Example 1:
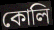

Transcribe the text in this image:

কোলি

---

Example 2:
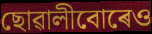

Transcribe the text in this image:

ছোৱালীবোৰেও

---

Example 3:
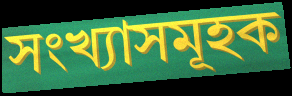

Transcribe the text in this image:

সংখ্যাসমূহক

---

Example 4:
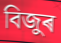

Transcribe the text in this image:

বিজুৰ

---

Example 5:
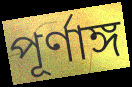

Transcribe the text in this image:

পূৰ্ণাঙ্গ